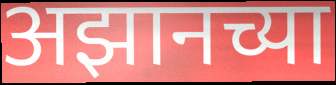
अझानच्या